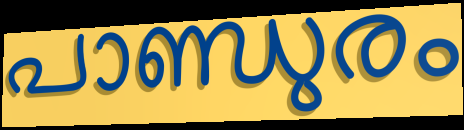
പാണ്ഡുരം